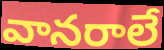
వానరాలే